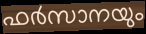
ഫർസാനയും